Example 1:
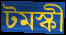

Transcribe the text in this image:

টমস্কী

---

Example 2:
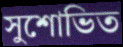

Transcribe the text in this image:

সুশোভিত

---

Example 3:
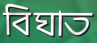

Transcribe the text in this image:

বিঘাত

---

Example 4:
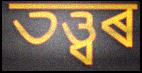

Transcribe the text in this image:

তত্ত্বৰ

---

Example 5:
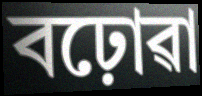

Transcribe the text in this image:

বঢ়োৱা